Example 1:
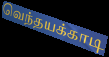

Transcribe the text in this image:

வெந்தயக்காடி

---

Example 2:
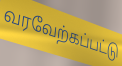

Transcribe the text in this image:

வரவேற்கப்பட்டு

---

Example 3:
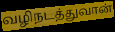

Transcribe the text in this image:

வழிநடத்துவான்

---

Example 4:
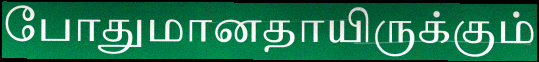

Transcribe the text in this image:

போதுமானதாயிருக்கும்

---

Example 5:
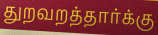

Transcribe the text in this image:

துறவறத்தார்க்கு